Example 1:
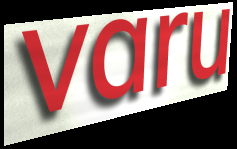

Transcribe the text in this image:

varu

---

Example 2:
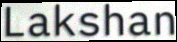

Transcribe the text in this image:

Lakshan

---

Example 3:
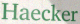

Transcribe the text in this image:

Haecker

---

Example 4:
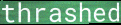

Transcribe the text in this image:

thrashed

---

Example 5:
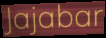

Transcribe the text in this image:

Jajabar